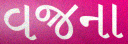
વજ્રના